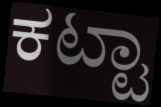
ಕಟ್ಟಾ